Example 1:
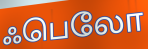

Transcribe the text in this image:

ஃபெலோ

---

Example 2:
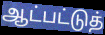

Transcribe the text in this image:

ஆட்பட்டுத்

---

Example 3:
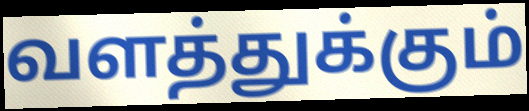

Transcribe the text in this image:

வளத்துக்கும்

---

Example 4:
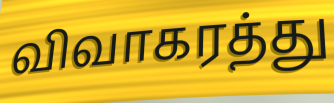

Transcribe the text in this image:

விவாகரத்து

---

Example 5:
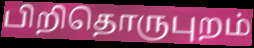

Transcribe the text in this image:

பிறிதொருபுறம்